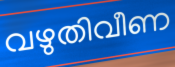
വഴുതിവീണ